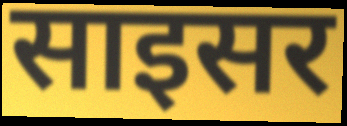
साइसर